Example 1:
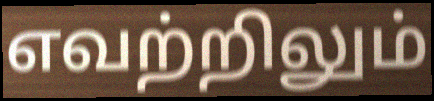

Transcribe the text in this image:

எவற்றிலும்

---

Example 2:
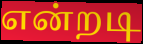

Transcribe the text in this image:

என்றடி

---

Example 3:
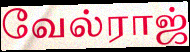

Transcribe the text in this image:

வேல்ராஜ்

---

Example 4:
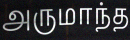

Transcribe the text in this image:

அருமாந்த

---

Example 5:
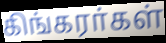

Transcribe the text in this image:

கிங்கரர்கள்